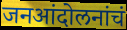
जनआंदोलनांचं